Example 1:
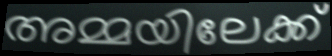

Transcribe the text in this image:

അമ്മയിലേക്ക്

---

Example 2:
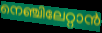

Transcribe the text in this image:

നെഞ്ചിലേറ്റാൻ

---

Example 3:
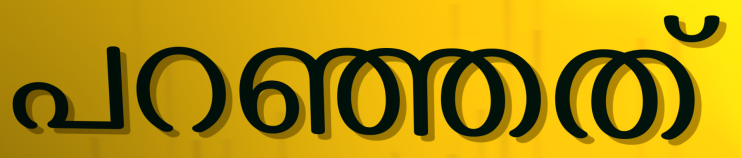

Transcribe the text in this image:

പറഞ്ഞത്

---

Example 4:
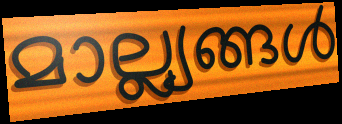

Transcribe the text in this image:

മാല്ല്യങ്ങൾ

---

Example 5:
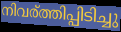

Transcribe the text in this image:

നിവര്ത്തിപ്പിടിച്ചു